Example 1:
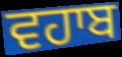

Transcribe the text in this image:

ਵਹਾਬ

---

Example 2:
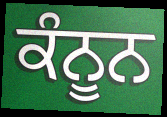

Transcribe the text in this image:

ਕੰਨੂਨ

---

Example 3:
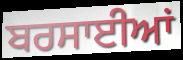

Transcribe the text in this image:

ਬਰਸਾਈਆਂ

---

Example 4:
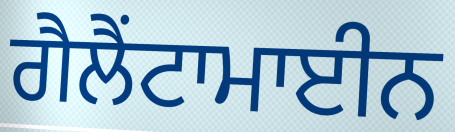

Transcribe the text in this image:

ਗੈਲੈਂਟਾਮਾਈਨ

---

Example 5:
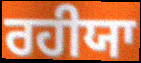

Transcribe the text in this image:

ਰਹੀਯਾ